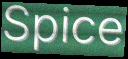
Spice